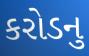
કરોડનુ